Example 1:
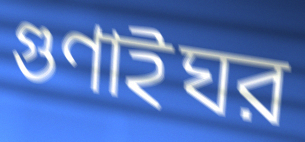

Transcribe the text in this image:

গুণাইঘর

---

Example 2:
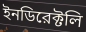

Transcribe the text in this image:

ইনডিরেক্টলি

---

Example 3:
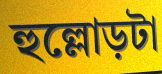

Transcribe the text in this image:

হুল্লোড়টা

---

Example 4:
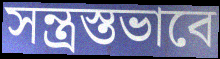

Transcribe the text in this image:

সন্ত্রস্তভাবে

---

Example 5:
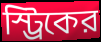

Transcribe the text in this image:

স্ট্রিকের